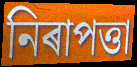
নিৰাপত্তা